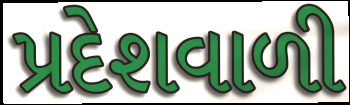
પ્રદેશવાળી